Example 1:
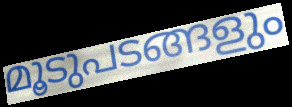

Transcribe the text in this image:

മൂടുപടങ്ങളും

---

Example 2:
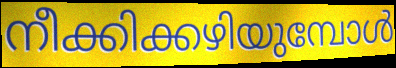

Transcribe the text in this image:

നീക്കിക്കഴിയുമ്പോൾ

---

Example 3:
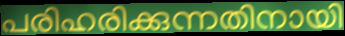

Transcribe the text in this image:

പരിഹരിക്കുന്നതിനായി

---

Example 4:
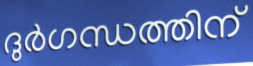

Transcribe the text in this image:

ദുർഗന്ധത്തിന്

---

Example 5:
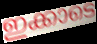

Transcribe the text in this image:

ഇക്കാടെ